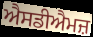
ਐਸਡੀਐਮਜ਼